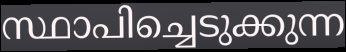
സ്ഥാപിച്ചെടുക്കുന്ന